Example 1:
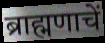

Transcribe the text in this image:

ब्राह्मणाचें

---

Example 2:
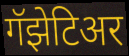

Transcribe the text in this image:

गॅझेटिअर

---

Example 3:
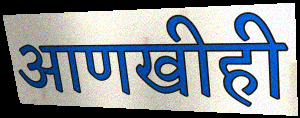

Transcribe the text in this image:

आणखीही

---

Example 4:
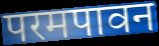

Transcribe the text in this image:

परमपावन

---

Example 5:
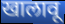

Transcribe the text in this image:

खालावू